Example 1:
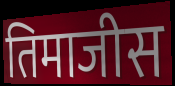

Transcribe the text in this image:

तिमाजीस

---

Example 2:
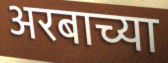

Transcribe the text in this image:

अरबाच्या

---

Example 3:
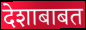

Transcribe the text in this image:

देशाबाबत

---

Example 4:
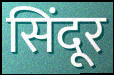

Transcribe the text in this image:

सिंदूर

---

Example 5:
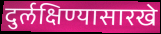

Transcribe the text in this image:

दुर्लक्षिण्यासारखे